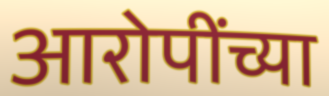
आरोपींच्या